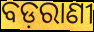
ବଡ଼ରାଣୀ